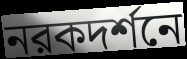
নরকদর্শনে